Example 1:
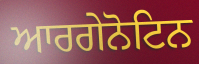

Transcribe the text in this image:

ਆਰਗੇਨੋਟਿਨ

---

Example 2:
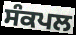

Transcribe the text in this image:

ਸੰਕਪਲ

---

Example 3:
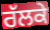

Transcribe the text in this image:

ਰੱਲਕੇ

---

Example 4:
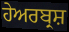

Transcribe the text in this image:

ਹੇਅਰਬ੍ਰਸ਼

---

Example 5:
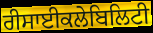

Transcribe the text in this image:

ਰੀਸਾਈਕਲੇਬਿਲਿਟੀ